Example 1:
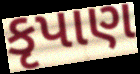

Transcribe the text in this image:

કૃપાણ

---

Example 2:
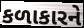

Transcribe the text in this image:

કળાકારને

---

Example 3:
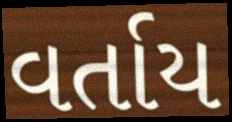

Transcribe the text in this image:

વર્તાય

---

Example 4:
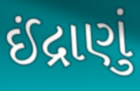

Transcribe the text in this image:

ઈંદ્રાણું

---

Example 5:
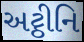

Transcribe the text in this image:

અટ્ઠીનિ